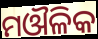
ମଔଳିକ